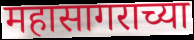
महासागराच्या